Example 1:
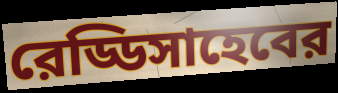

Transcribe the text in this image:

রেড্ডিসাহেবের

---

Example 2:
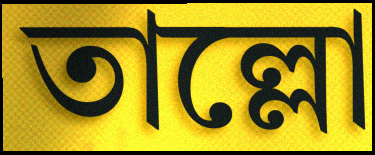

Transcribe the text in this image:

তাল্লো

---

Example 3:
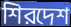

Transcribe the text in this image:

শিরদেশ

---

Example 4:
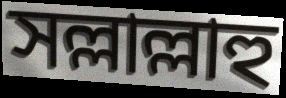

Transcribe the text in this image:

সল্লাল্লাহু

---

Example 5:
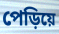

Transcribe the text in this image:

পেড়িয়ে